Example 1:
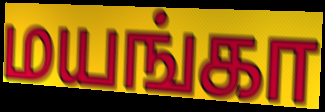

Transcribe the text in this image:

மயங்கா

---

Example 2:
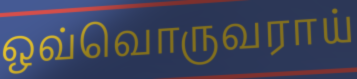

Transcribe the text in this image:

ஒவ்வொருவராய்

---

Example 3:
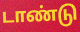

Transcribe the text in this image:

டாண்டு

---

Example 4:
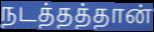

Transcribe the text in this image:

நடத்தத்தான்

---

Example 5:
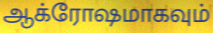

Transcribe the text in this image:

ஆக்ரோஷமாகவும்